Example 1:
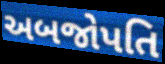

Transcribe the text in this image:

અબજોપતિ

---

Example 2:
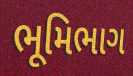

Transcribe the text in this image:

ભૂમિભાગ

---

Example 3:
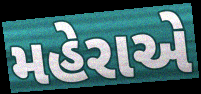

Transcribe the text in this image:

મહેરાએ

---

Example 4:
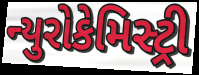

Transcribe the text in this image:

ન્યુરોકેમિસ્ટ્રી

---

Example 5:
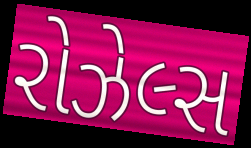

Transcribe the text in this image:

રોઝેલ્સ